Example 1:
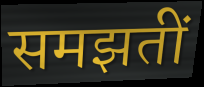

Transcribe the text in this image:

समझतीं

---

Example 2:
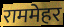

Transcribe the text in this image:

राममेहर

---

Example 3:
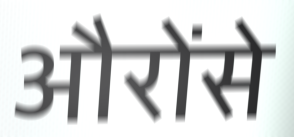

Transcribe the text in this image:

औरोंसे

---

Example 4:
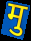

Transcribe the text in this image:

मु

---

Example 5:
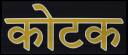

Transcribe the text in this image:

कोटक